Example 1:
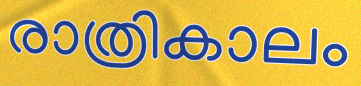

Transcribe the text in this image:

രാത്രികാലം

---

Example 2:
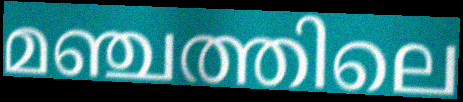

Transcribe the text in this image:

മഞ്ചത്തിലെ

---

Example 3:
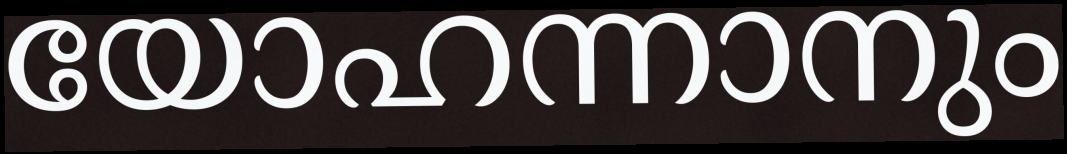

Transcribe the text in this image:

യോഹന്നാനും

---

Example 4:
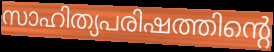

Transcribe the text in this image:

സാഹിത്യപരിഷത്തിന്റെ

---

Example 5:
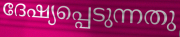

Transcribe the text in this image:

ദേഷ്യപ്പെടുന്നതു